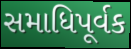
સમાધિપૂર્વક